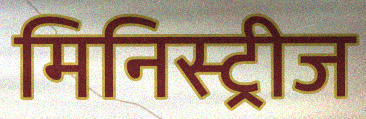
मिनिस्ट्रीज